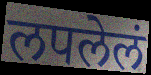
लपलेलं